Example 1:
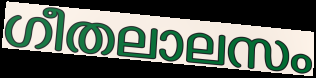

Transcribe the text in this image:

ഗീതലാലസം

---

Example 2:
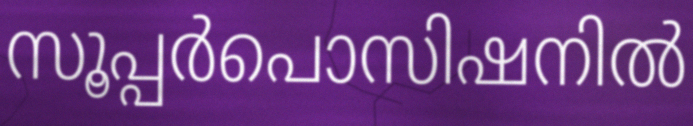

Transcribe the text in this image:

സൂപ്പർപൊസിഷനിൽ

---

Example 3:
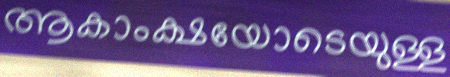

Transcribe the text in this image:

ആകാംക്ഷയോടെയുള്ള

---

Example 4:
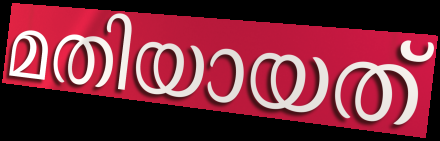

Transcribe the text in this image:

മതിയായത്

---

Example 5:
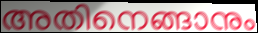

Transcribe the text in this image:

അതിനെങ്ങാനും